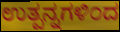
ಉತ್ಪನ್ನಗಳಿಂದ